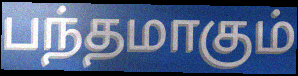
பந்தமாகும்